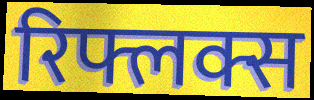
रिफ्लक्स